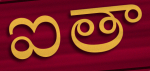
ఐతా